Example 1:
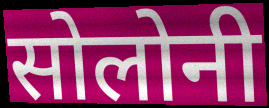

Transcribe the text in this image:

सोलोनी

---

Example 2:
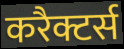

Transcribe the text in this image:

करैक्टर्स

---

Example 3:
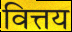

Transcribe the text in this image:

वित्तय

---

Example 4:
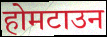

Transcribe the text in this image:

होमटाउन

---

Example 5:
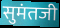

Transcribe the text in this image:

सुमंतजी